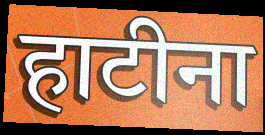
हाटीना